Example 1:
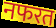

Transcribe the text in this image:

नफरत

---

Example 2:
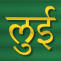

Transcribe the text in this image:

लुई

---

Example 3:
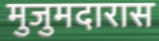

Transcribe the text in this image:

मुजुमदारास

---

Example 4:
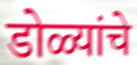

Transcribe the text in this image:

डोळ्यांचे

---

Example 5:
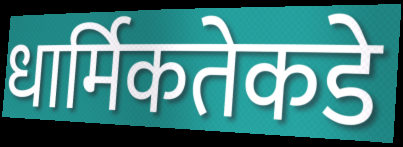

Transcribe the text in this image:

धार्मिकतेकडे